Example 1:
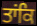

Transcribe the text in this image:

ਤਾਂਕਿ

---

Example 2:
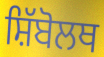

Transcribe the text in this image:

ਸ਼ਿੱਬੋਲਥ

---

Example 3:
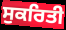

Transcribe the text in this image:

ਸੁਕਰਿਤੀ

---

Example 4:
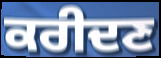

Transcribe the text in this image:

ਕਰੀਦਣ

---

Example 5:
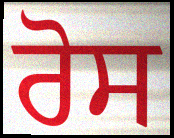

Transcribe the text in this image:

ਰੋਸ